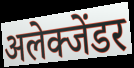
अलेक्जेंडर